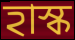
হাস্ক